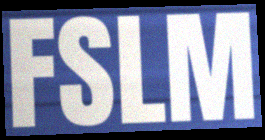
FSLM